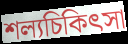
শল্যচিকিৎসা